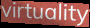
virtuality